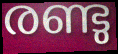
രണ്ടു